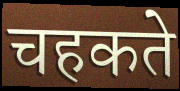
चहकते